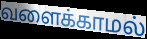
வளைக்காமல்